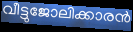
വീട്ടുജോലിക്കാരൻ